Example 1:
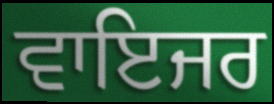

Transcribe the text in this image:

ਵਾਇਜਰ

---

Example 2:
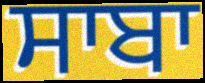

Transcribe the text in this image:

ਸਾਬਾ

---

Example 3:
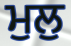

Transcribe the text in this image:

ਮੁਲੁ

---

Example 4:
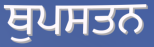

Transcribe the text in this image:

ਥੁਪਸਤਨ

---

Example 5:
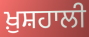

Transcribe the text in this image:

ਖ਼ੁਸ਼ਹਾਲੀ